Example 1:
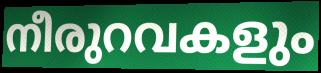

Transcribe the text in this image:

നീരുറവകളും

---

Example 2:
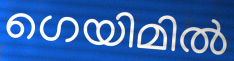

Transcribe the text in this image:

ഗെയിമിൽ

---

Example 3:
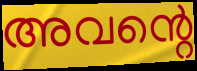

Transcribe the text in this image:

അവന്റെ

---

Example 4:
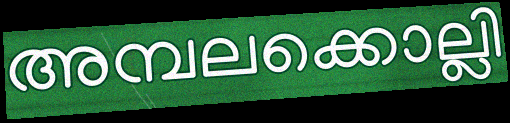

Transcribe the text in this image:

അമ്പലക്കൊല്ലി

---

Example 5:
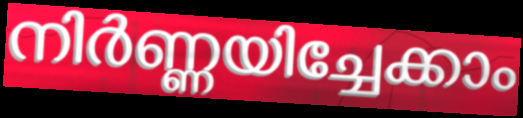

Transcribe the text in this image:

നിർണ്ണയിച്ചേക്കാം